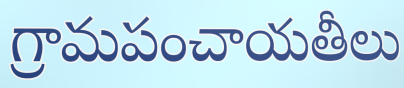
గ్రామపంచాయతీలు